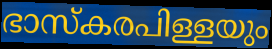
ഭാസ്കരപിള്ളയും